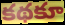
కథకూ